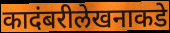
कादंबरीलेखनाकडे